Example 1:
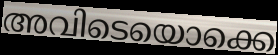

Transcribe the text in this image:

അവിടെയൊക്കെ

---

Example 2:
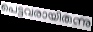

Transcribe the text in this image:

പെട്ടവരായിരുന്നു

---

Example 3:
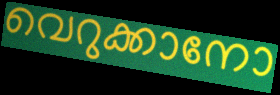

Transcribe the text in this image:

വെറുക്കാനോ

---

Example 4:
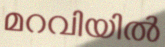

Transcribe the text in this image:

മറവിയിൽ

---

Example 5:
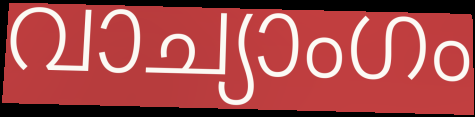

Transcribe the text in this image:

വാച്യാംഗം